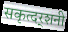
सकृत्दर्शनी